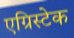
एग्रिस्टेक